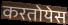
करतोयेस